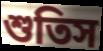
শুতিস